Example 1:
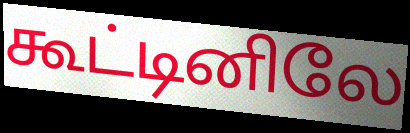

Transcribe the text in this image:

கூட்டினிலே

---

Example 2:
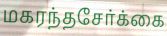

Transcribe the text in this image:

மகரந்தசேர்க்கை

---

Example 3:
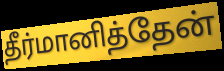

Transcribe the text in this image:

தீர்மானித்தேன்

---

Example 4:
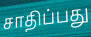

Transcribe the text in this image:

சாதிப்பது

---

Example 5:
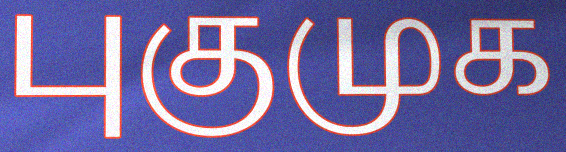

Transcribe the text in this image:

புகுமுக